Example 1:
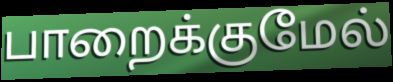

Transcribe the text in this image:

பாறைக்குமேல்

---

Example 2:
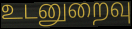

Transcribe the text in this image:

உடனுறைவு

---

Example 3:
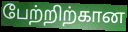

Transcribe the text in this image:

பேற்றிற்கான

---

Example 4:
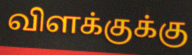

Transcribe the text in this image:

விளக்குக்கு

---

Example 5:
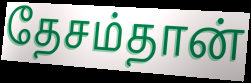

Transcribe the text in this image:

தேசம்தான்